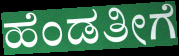
ಹೆಂಡತೀಗೆ